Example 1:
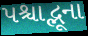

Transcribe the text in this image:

પશ્ચાદ્ભૂના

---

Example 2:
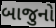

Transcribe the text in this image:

બાજુનો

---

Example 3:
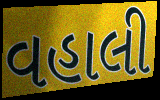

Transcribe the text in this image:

વહાલી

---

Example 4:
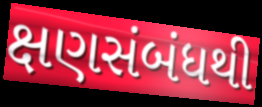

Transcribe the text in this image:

ક્ષણસંબંધથી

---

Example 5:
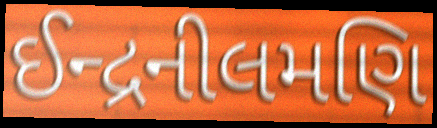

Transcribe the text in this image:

ઈન્દ્રનીલમણિ